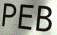
PEB